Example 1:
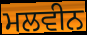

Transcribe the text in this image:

ਮਲਵੀਨ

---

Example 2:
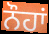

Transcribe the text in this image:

ਨੌਹਾਂ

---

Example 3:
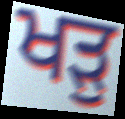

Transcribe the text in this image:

ਖੜੁ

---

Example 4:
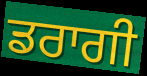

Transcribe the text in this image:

ਡਰਾਗੀ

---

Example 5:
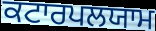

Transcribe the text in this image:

ਕਟਾਰਪਲਯਾਮ